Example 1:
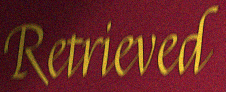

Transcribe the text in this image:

Retrieved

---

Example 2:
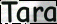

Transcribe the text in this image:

Tara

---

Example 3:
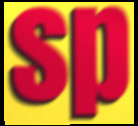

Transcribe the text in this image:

sp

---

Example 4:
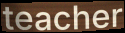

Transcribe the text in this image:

teacher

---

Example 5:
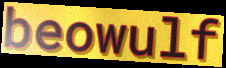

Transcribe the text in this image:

beowulf